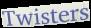
Twisters